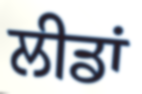
ਲੀਡਾਂ